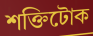
শক্তিটোক